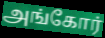
அங்கோர்